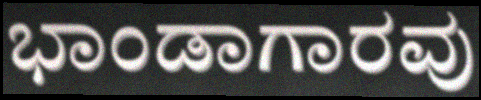
ಭಾಂಡಾಗಾರವು